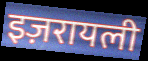
इज़रायली